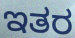
ಇತರ